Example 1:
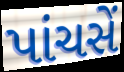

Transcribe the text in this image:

પાંચસેં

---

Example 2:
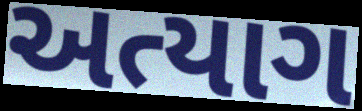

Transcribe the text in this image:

અત્યાગ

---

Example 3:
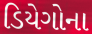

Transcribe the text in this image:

ડિયેગોના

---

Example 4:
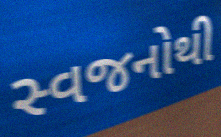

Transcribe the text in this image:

સ્વજનોથી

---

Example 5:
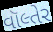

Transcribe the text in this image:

વૉલ્તેર